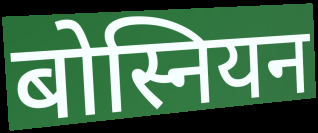
बोस्नियन